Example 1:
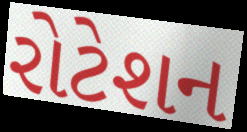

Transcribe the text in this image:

રોટેશન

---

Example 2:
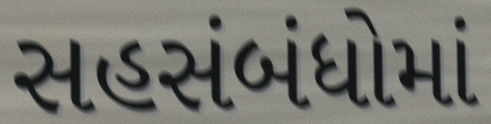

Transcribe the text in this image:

સહસંબંધોમાં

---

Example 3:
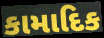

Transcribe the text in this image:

કામાદિક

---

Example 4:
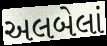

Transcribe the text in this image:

અલબેલાં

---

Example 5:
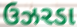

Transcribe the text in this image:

ઉઝરડા